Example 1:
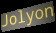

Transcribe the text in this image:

Jolyon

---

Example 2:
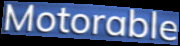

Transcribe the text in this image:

Motorable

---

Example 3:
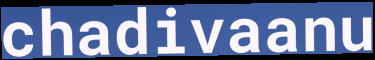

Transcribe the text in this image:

chadivaanu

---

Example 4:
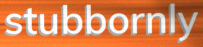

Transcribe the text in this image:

stubbornly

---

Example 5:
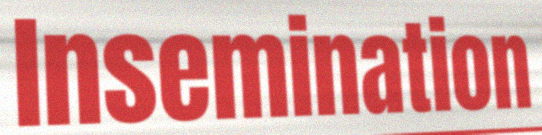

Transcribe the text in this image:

Insemination